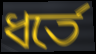
ধর্তে